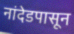
नांदेडपासून